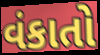
વંકાતો